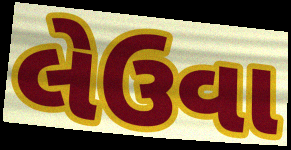
લેઉવા